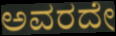
ಅವರದೇ